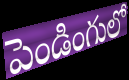
పెండింగులో